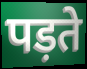
पड़ते